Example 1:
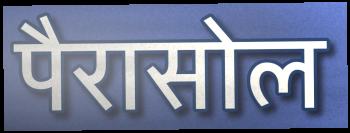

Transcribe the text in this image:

पैरासोल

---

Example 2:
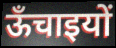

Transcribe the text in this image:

ऊँचाइयों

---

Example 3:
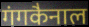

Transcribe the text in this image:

गंगकैनाल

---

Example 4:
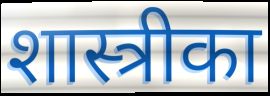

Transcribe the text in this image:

शास्त्रीका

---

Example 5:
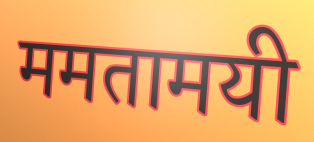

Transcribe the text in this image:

ममतामयी